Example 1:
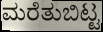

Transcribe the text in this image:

ಮರೆತುಬಿಟ್ಟ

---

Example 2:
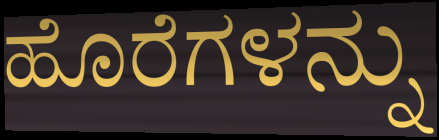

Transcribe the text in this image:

ಹೊರೆಗಳನ್ನು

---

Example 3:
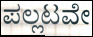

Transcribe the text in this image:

ಪಲ್ಲಟವೇ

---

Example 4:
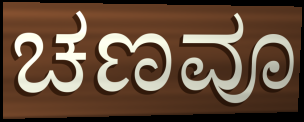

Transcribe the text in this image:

ಚಣವೂ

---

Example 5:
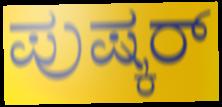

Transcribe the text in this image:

ಪುಷ್ಕರ್